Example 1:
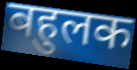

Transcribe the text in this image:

बहुलक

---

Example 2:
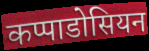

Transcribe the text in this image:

कप्पाडोसियन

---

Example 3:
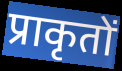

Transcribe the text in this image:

प्राकृतों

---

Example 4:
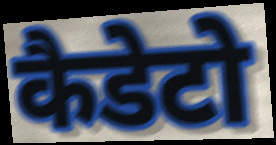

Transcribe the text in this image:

कैडेटो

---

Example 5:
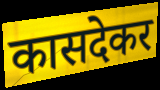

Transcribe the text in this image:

कासदेकर